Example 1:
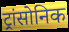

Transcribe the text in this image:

ट्रांसोनिक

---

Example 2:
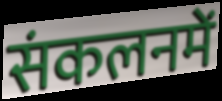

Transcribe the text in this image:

संकलनमें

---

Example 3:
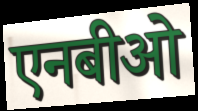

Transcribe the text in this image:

एनबीओ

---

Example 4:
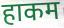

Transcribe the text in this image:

हाकम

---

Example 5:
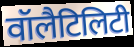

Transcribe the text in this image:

वॉलैटिलिटी